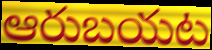
ఆరుబయట